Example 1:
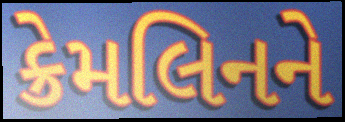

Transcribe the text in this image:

ક્રેમલિનને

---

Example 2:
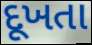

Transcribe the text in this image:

દૂખતા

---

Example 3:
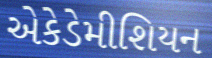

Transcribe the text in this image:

એકેડેમીશિયન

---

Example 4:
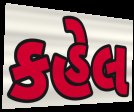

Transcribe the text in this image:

કહેલ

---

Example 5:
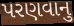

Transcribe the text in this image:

પરણવાનુ